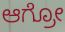
ಆಗ್ರೋ